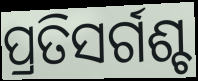
ପ୍ରତିସର୍ଗଶ୍ଚ